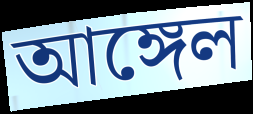
আঙ্গেল